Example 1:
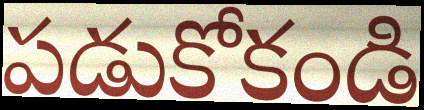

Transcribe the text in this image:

పడుకోకండి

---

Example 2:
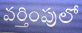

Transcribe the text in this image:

వర్తింపులో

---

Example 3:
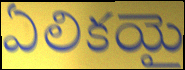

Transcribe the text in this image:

ఏలికయై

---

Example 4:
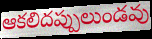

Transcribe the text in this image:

ఆకలిదప్పులుండవు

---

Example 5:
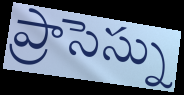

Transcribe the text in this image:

ప్రాసెస్ను